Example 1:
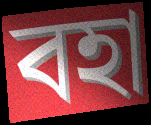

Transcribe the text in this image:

বহা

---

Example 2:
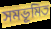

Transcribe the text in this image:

সমভূমিত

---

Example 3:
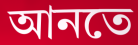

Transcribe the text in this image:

আনতে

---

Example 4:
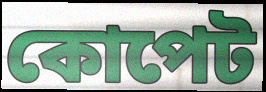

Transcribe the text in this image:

কোপেট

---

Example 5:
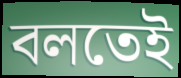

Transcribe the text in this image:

বলতেই